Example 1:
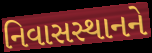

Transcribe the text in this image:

નિવાસસ્થાનને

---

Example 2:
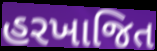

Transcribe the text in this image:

હરખાજિત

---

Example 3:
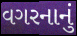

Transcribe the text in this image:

વગરનાનું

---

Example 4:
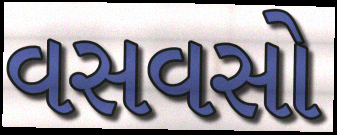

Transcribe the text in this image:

વસવસો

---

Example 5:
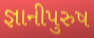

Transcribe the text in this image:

જ્ઞાનીપુરુષ